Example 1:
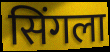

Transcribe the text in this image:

सिंगला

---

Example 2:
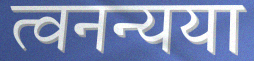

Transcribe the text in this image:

त्वनन्यया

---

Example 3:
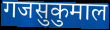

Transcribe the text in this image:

गजसुकुमाल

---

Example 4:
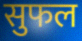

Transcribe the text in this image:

सुफल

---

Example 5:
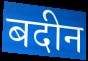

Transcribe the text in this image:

बदीन